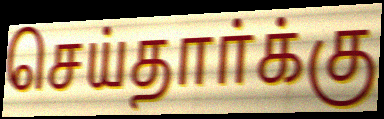
செய்தார்க்கு